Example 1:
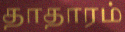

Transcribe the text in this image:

தாதாரம்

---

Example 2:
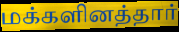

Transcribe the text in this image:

மக்களினத்தார்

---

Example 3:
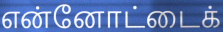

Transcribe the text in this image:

என்னோட்டைக்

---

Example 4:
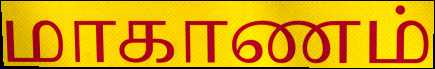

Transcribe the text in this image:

மாகாணம்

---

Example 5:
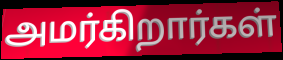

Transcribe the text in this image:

அமர்கிறார்கள்